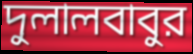
দুলালবাবুর